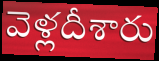
వెళ్లదీశారు